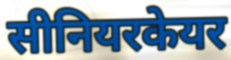
सीनियरकेयर